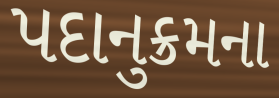
પદાનુક્રમના